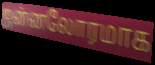
ஜன்னலோரமாக